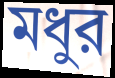
মধুর